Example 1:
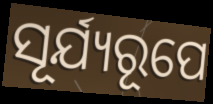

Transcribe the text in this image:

ସୂର୍ଯ୍ୟରୂପେ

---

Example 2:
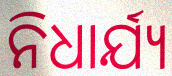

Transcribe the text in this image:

ନିଧାର୍ଯ୍ୟ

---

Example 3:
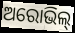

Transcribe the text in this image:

ଅରୋଭିଲ୍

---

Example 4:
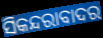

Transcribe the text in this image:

ସିକନ୍ଦରାବାଦର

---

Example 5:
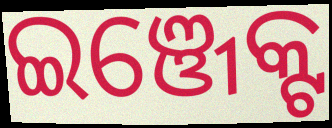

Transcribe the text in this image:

ଇଞ୍ଜେକ୍ଟ